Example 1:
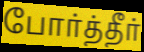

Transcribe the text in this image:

போர்த்தீர்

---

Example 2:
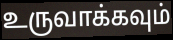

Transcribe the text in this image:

உருவாக்கவும்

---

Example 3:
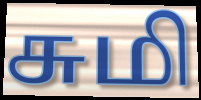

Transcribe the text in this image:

சுமி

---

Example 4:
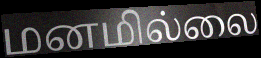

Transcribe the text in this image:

மனமில்லை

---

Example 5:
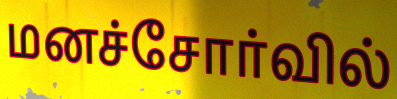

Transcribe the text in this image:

மனச்சோர்வில்